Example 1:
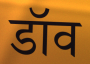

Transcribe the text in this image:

डॉव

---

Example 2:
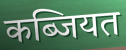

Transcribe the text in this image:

कब्जियत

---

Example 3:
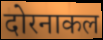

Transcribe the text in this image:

दोरनाकल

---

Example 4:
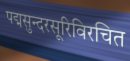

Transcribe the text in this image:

पद्मसुन्दरसूरिविरचित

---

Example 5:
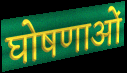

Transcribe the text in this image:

घोषणाओं